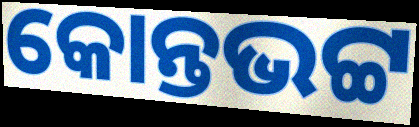
କୋନ୍ତଭଟ୍ଟ